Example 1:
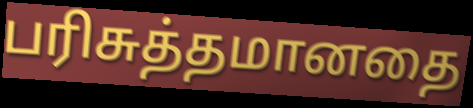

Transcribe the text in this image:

பரிசுத்தமானதை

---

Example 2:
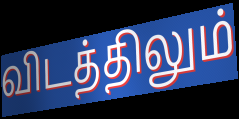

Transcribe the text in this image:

விடத்திலும்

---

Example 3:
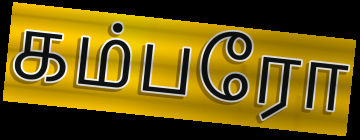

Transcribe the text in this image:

கம்பரோ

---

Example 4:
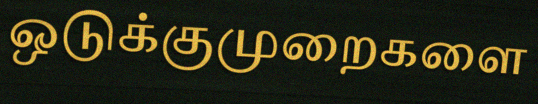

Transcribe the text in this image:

ஒடுக்குமுறைகளை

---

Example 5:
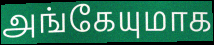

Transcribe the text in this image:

அங்கேயுமாக